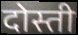
दोस्ती